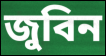
জুবিন